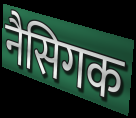
नैसिगक